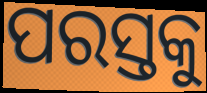
ପରସ୍ତକୁ